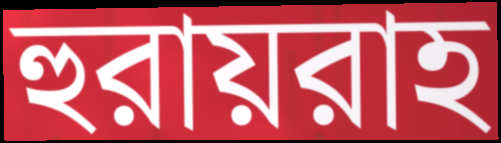
হুরায়রাহ